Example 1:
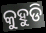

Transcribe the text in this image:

କୁହୁଡି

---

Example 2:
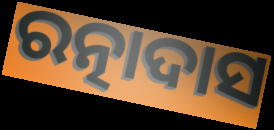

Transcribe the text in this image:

ରତ୍ନାଦାସ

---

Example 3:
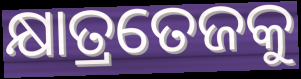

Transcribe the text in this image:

କ୍ଷାତ୍ରତେଜକୁ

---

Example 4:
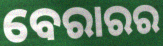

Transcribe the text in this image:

ବେରାରର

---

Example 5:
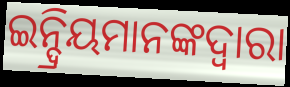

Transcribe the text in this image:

ଇନ୍ଦ୍ରିୟମାନଙ୍କଦ୍ୱାରା